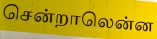
சென்றாலென்ன